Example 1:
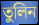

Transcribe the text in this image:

তুলিন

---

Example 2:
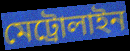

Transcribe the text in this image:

মেট্রোলাইন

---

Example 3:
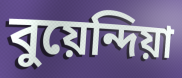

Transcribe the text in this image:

বুয়েন্দিয়া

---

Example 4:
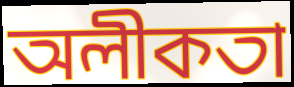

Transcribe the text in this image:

অলীকতা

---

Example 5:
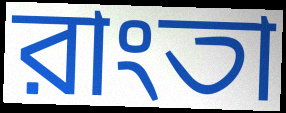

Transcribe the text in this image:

রাংতা